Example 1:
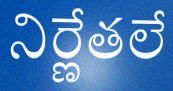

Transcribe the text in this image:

నిర్ణేతలే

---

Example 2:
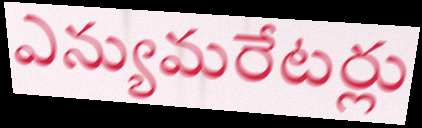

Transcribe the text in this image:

ఎన్యుమరేటర్లు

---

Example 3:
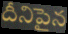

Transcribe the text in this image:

దీనిపైన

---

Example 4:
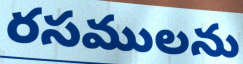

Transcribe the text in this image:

రసములను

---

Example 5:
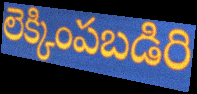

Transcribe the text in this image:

లెక్కింపబడిరి